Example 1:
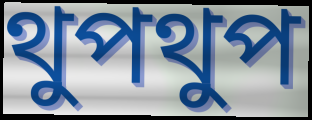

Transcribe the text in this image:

থুপথুপ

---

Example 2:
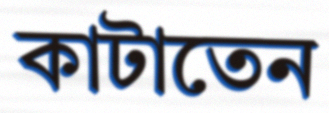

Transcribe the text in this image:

কাটাতেন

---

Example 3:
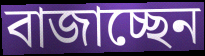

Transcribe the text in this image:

বাজাচ্ছেন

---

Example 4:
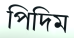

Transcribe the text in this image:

পিদিম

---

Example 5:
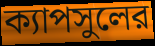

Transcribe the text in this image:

ক্যাপসুলের